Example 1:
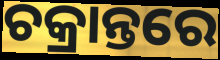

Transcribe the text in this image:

ଚକ୍ରାନ୍ତରେ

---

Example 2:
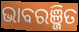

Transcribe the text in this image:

ଭାବରଞ୍ଜିତ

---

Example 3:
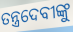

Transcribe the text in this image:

ତନ୍ତ୍ରଦେବୀଙ୍କୁ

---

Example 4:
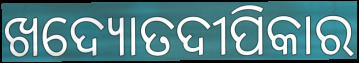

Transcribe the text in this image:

ଖଦ୍ୟୋତଦୀପିକାର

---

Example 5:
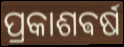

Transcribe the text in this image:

ପ୍ରକାଶଵର୍ଷ